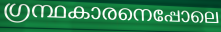
ഗ്രന്ഥകാരനെപ്പോലെ